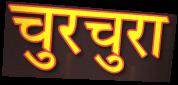
चुरचुरा